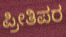
ಪ್ರೀತಿಪರ